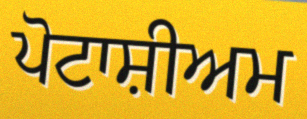
ਪੋਟਾਸ਼ੀਅਮ